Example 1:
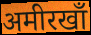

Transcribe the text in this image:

अमीरखाँ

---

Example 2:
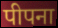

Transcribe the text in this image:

पीपना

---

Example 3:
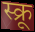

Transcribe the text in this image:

स्क्रू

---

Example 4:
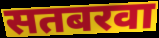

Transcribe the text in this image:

सतबरवा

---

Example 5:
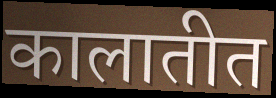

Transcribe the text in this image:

कालातीत